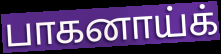
பாகனாய்க்